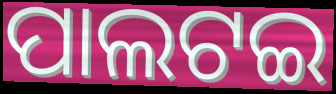
ପାଲଟଇ